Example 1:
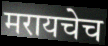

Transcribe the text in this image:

मरायचेच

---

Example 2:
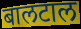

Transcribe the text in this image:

बालटाल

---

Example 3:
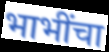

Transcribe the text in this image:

भाभींचा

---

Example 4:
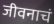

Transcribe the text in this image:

जीवनाचं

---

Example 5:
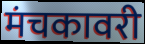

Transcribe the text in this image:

मंचकावरी